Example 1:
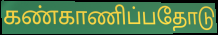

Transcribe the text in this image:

கண்காணிப்பதோடு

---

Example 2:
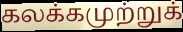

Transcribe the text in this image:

கலக்கமுற்றுக்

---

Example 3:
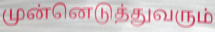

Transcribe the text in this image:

முன்னெடுத்துவரும்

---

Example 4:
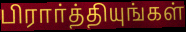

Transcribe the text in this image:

பிரார்த்தியுங்கள்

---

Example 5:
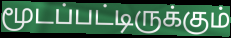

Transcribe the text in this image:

மூடப்பட்டிருக்கும்